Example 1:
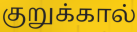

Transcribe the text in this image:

குறுக்கால்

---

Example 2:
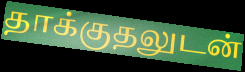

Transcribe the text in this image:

தாக்குதலுடன்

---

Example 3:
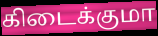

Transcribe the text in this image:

கிடைக்குமா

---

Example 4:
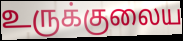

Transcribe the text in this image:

உருக்குலைய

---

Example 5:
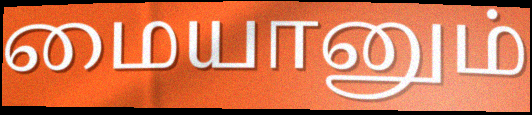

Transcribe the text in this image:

மையானும்